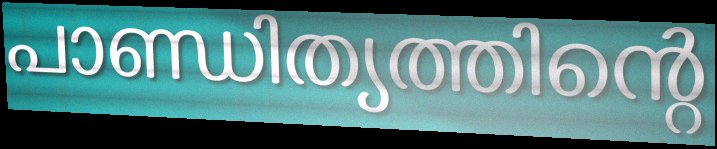
പാണ്ഡിത്യത്തിന്റെ